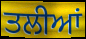
ਤਲੀਆਂ